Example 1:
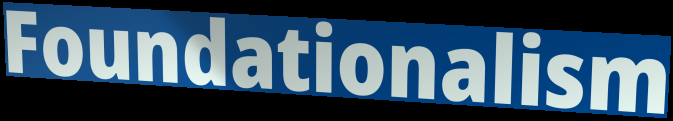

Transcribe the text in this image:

Foundationalism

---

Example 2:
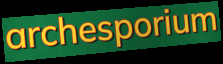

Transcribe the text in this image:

archesporium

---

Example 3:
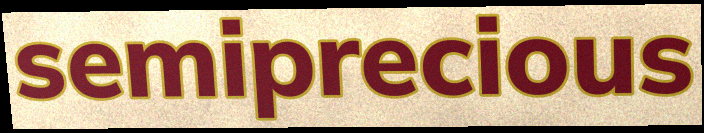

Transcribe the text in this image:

semiprecious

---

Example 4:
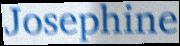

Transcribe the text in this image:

Josephine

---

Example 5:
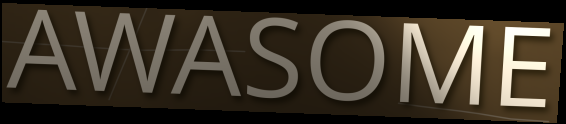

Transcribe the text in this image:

AWASOME